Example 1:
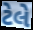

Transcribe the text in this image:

ટેલે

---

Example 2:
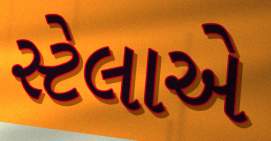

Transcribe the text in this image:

સ્ટેલાએ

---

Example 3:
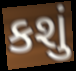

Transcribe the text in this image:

કશું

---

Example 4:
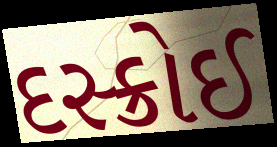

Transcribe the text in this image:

દસ્ક્રોઈ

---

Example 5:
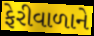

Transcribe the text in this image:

ફેરીવાળાને